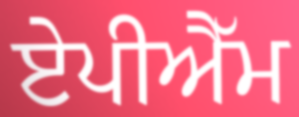
ਏਪੀਐੱਮ